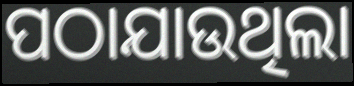
ପଠାଯାଉଥିଲା